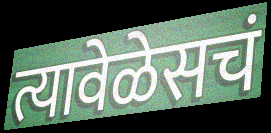
त्यावेळेसचं